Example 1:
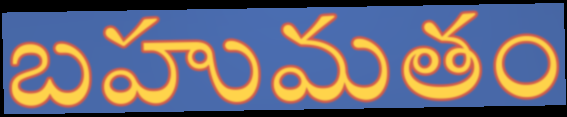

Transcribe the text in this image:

బహుమతం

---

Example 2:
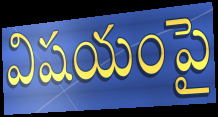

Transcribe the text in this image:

విషయంపై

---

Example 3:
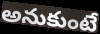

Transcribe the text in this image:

అనుకుంటే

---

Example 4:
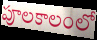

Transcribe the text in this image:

పూలకాలంలో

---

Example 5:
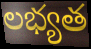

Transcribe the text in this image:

లభ్యత